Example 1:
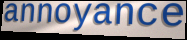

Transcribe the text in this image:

annoyance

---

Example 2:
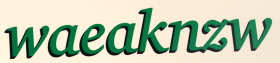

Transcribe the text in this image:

waeaknzw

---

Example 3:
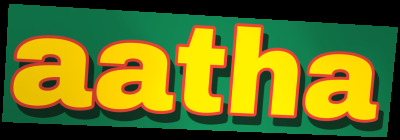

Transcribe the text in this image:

aatha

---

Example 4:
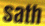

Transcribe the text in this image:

sath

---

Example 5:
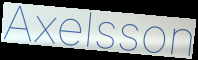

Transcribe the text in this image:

Axelsson